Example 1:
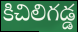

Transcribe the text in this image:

కిచిలిగడ్డ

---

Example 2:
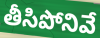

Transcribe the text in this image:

తీసిపోనివే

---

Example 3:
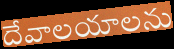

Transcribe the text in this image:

దేవాలయాలను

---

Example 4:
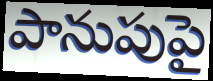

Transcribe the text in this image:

పానుపుపై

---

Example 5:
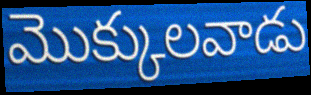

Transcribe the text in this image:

మొక్కులవాడు